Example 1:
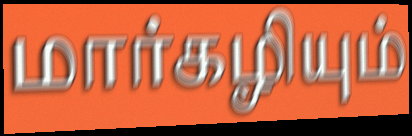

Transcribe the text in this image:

மார்கழியும்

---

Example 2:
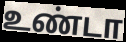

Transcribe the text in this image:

உண்டா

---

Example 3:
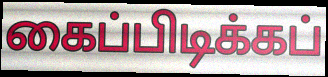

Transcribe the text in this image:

கைப்பிடிக்கப்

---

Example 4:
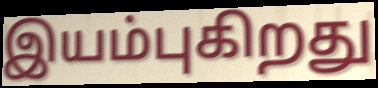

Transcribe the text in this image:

இயம்புகிறது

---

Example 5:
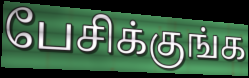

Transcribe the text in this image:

பேசிக்குங்க